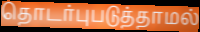
தொடர்புபடுத்தாமல்